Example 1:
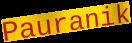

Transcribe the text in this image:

Pauranik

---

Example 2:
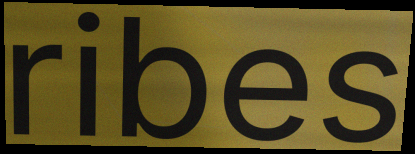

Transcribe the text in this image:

ribes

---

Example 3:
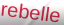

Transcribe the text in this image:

rebelle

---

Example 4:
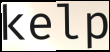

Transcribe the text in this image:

kelp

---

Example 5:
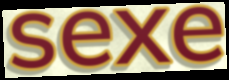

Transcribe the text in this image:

sexe